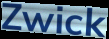
Zwick